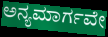
ಅನ್ಯಮಾರ್ಗವೇ